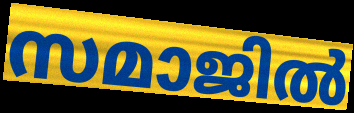
സമാജിൽ